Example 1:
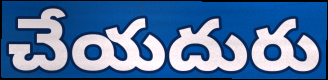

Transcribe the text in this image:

చేయదురు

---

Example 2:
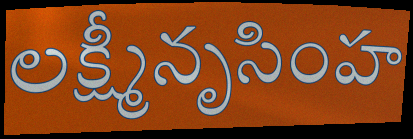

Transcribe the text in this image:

లక్ష్మీనృసింహ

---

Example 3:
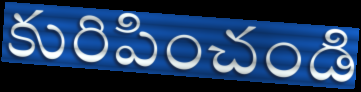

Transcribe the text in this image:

కురిపించండి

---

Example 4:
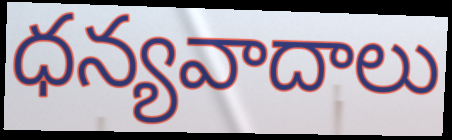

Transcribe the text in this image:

ధన్యవాదాలు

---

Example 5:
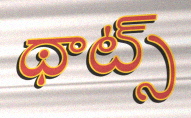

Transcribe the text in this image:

థాట్స్